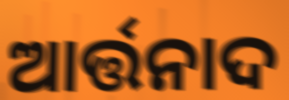
ଆର୍ତ୍ତନାଦ